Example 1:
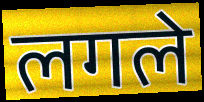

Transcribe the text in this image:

लगले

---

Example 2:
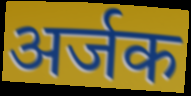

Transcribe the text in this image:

अर्जक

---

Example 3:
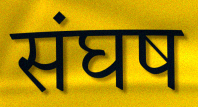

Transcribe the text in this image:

संघष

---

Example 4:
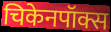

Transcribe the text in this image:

चिकेनपॉक्स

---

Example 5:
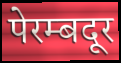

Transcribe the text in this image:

पेरम्बदूर